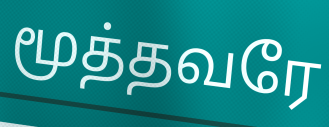
மூத்தவரே